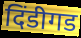
दिंडीगड